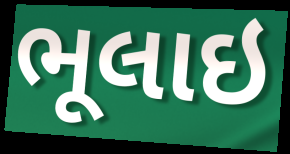
ભૂલાઇ